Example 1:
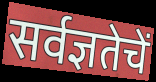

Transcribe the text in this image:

सर्वज्ञतेचें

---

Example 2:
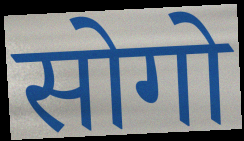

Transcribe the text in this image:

सोगो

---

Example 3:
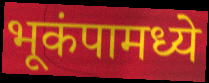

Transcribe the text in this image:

भूकंपामध्ये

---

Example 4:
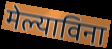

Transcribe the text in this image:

मेल्याविना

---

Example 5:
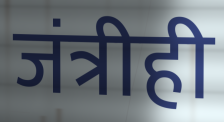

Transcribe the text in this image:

जंत्रीही